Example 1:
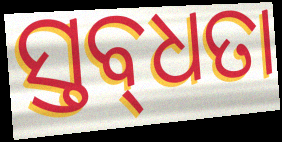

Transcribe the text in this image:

ସ୍ତବ୍‍ଧତା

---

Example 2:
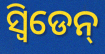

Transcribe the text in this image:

ସ୍ଵିଡେନ୍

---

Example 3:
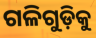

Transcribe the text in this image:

ଗଳିଗୁଡ଼ିକୁ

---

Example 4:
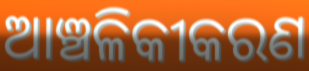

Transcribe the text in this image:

ଆଞ୍ଚଳିକୀକରଣ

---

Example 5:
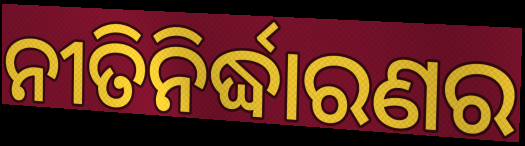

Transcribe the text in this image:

ନୀତିନିର୍ଦ୍ଧାରଣର